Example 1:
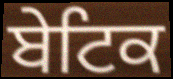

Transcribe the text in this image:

ਬੇਟਿਕ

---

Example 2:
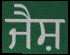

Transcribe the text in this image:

ਜੈਸ਼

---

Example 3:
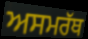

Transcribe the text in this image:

ਅਸਮਰੱਥ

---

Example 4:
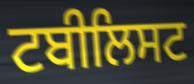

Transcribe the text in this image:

ਟਬੀਲਿਸਟ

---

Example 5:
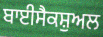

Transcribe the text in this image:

ਬਾਈਸੈਕਸ਼ੁਅਲ